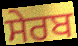
ਸੇਰਬ